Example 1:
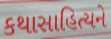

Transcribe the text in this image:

કથાસાહિત્યને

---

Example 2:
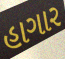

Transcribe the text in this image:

હાગાર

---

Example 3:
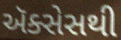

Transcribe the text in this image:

ઍક્સેસથી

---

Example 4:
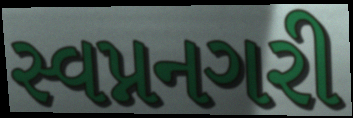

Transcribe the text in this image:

સ્વપ્નનગરી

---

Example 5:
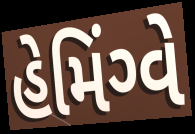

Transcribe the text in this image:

હેમિંગ્વે